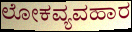
ಲೋಕವ್ಯವಹಾರ